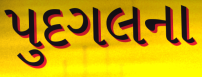
પુદગલના